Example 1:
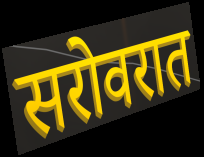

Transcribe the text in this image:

सरोवरात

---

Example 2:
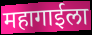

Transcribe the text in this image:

महागाईला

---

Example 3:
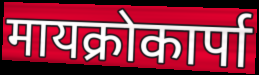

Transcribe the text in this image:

मायक्रोकार्पा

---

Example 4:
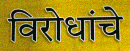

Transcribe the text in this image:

विरोधांचे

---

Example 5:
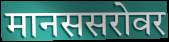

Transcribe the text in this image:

मानससरोवर